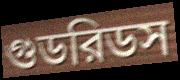
গুডরিডস